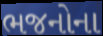
ભજનોના